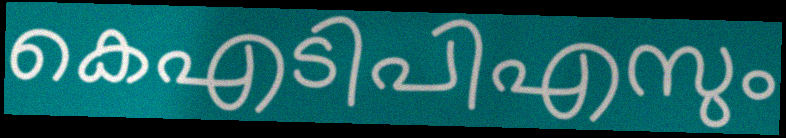
കെഎടിപിഎസും